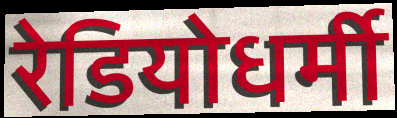
रेडियोधर्मी